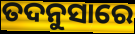
ତଦନୁସାରେ